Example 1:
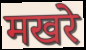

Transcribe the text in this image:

मखरे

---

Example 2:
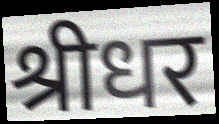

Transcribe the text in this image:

श्रीधर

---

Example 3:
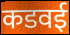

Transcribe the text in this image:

कडवई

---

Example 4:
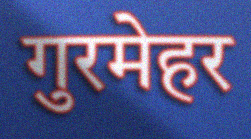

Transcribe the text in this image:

गुरमेहर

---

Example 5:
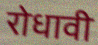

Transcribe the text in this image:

रोधावी